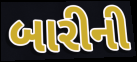
બારીની